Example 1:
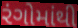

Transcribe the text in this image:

રંગોમાંથી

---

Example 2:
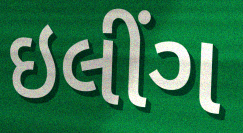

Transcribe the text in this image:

ઇલીંગ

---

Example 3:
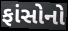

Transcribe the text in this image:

ફાંસોનો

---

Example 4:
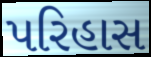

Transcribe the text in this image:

પરિહાસ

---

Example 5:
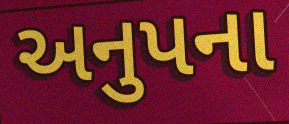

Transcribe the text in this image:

અનુપના